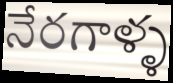
నేరగాళ్ళ